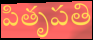
పితృపతి